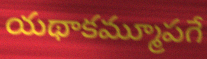
యథాకమ్మూపగే